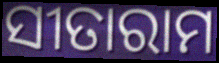
ସୀତାରାମ